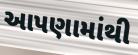
આપણામાંથી